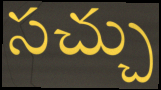
సచ్చు